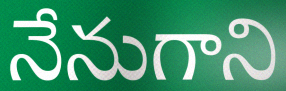
నేనుగాని